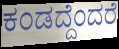
ಕಂಡದ್ದೆಂದರೆ